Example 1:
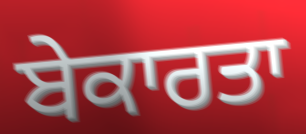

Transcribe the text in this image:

ਬੇਕਾਰਤਾ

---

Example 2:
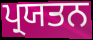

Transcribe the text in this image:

ਪ੍ਰਯਤਨ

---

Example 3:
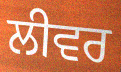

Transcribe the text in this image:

ਲੀਵਰ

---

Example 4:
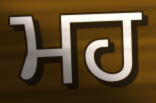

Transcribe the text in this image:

ਮਹ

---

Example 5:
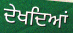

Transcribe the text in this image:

ਦੇਖਦਿਆਂ